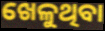
ଖେଳୁଥିବା